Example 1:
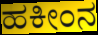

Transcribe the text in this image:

ಹಕೀಂನ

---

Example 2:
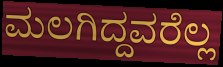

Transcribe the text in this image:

ಮಲಗಿದ್ದವರೆಲ್ಲ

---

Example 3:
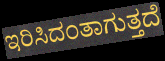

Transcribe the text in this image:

ಇರಿಸಿದಂತಾಗುತ್ತದೆ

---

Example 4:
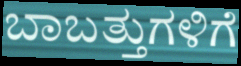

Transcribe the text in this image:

ಬಾಬತ್ತುಗಳಿಗೆ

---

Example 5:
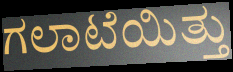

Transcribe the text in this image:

ಗಲಾಟೆಯಿತ್ತು